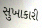
સુખાકારી